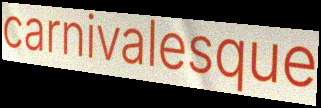
carnivalesque